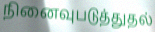
நினைவுபடுத்துதல்